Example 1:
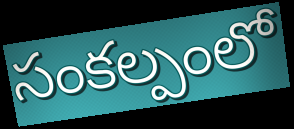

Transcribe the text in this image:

సంకల్పంలో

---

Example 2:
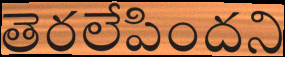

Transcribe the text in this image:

తెరలేపిందని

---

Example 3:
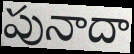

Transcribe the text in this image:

పునాదా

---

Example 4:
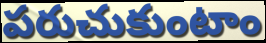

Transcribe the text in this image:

పరుచుకుంటాం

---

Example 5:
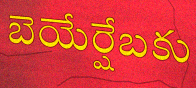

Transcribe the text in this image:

బెయేర్షేబకు